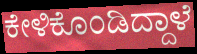
ಕೇಳಿಕೊಂಡಿದ್ದಾಳೆ